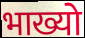
भाख्यो